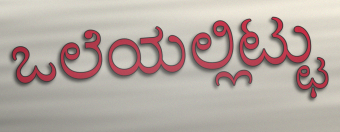
ಒಲೆಯಲ್ಲಿಟ್ಟು